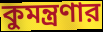
কুমন্ত্রণার